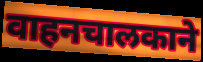
वाहनचालकाने